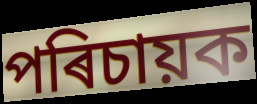
পৰিচায়ক